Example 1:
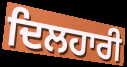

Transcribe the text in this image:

ਦਿਲਹਾਰੀ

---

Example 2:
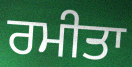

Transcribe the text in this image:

ਰਮੀਤਾ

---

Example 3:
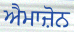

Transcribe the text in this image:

ਐਮਾਜ਼ੋਨ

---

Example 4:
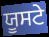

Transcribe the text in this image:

ਯੂਸਟੇ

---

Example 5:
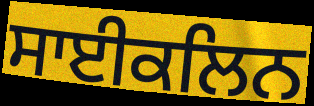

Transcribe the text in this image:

ਸਾਈਕਲਿਨ